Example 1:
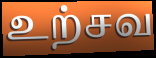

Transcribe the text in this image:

உற்சவ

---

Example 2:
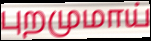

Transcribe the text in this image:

புறமுமாய்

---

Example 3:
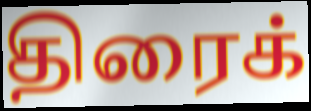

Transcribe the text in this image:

திரைக்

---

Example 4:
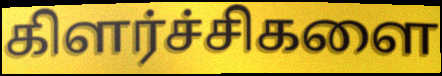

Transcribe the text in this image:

கிளர்ச்சிகளை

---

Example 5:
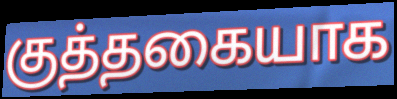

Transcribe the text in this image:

குத்தகையாக